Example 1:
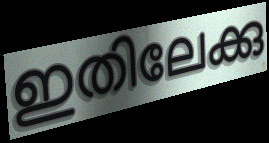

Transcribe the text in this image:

ഇതിലേക്കു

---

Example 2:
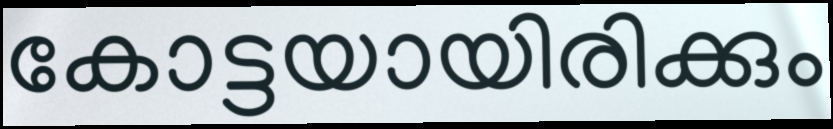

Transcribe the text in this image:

കോട്ടയായിരിക്കും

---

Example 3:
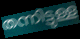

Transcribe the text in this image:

തന്നിട്ടുള്ള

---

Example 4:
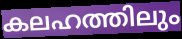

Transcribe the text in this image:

കലഹത്തിലും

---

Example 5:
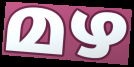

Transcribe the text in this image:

മഴ